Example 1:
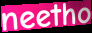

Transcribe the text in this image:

neetho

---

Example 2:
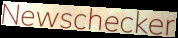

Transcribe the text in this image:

Newschecker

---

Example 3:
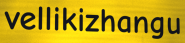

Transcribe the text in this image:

vellikizhangu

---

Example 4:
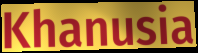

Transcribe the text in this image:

Khanusia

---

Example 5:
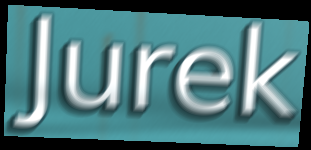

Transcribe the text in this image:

Jurek